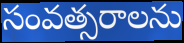
సంవత్సరాలను